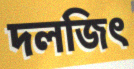
দলজিৎ